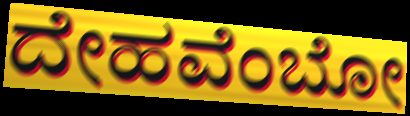
ದೇಹವೆಂಬೋ